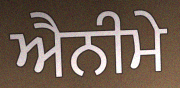
ਐਨੀਮੇ